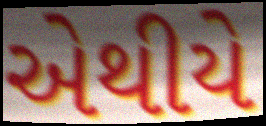
એથીયે